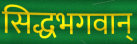
सिद्धभगवान्